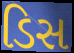
ડિસ